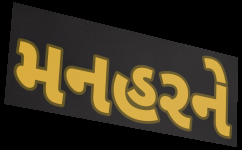
મનહરને